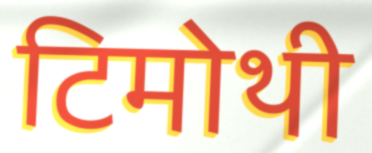
टिमोथी